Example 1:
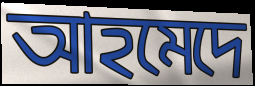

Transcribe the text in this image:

আহমেদে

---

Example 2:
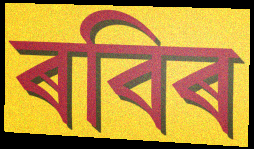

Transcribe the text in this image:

ৰবিৰ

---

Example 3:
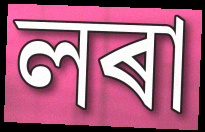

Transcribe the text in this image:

লৰা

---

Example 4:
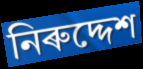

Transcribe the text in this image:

নিৰুদ্দেশ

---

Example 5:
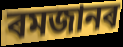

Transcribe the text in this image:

ৰমজানৰ